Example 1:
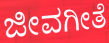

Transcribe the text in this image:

ಜೀವಗೀತೆ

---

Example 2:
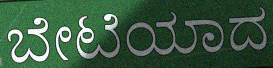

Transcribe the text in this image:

ಬೇಟೆಯಾದ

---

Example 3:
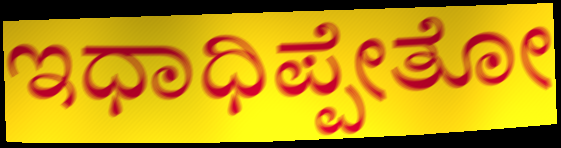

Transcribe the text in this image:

ಇಧಾಧಿಪ್ಪೇತೋ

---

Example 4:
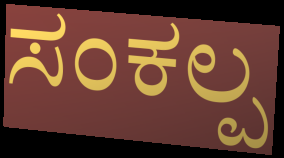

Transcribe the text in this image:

ಸಂಕಲ್ಪ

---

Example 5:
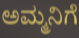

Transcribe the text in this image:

ಅಮ್ಮನಿಗೆ